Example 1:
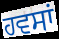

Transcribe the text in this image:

ਹਵਸਾਂ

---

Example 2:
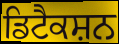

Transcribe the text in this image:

ਡਿਟੈਕਸ਼ਨ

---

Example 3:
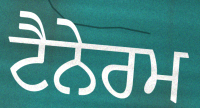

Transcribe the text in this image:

ਟੈਨੇਰਮ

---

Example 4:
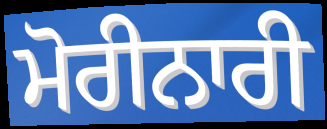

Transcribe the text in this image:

ਮੋਰੀਨਾਰੀ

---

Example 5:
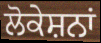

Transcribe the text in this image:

ਲੋਕੇਸ਼ਨਾਂ